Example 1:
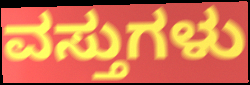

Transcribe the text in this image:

ವಸ್ತುಗಳು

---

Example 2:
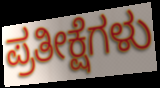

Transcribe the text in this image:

ಪ್ರತೀಕ್ಷೆಗಳು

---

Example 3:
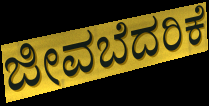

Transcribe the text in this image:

ಜೀವಬೆದರಿಕೆ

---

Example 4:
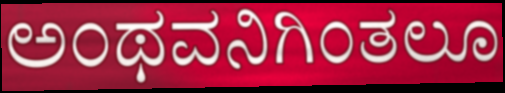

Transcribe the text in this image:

ಅಂಥವನಿಗಿಂತಲೂ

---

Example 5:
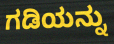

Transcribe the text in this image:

ಗಡಿಯನ್ನು